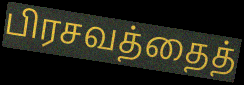
பிரசவத்தைத்